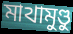
মাথামুণ্ডু